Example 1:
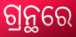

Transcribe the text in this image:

ଗ୍ରନ୍ଥରେ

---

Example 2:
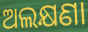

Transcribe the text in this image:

ଅଲକ୍ଷଣା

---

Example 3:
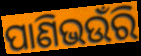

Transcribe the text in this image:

ପାଣିଭଉଁରି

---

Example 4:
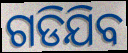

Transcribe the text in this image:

ଗଡିଯିବ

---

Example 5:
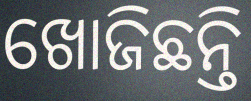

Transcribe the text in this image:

ଖୋଜିଛନ୍ତି